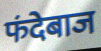
फंदेबाज